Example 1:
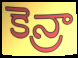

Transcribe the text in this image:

కెన్రా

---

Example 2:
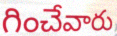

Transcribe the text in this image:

గించేవారు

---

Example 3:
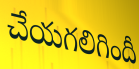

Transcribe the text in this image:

చేయగలిగిందీ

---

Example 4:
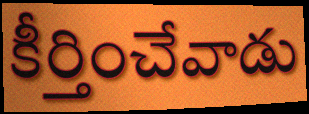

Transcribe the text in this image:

కీర్తించేవాడు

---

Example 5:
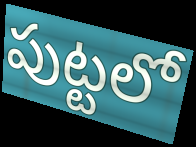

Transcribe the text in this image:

పుట్టలో